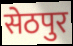
सेठपुर